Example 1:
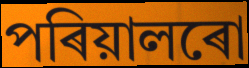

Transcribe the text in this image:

পৰিয়ালৰো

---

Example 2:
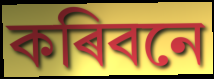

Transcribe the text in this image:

কৰিবনে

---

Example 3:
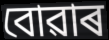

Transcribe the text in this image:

বোৱাৰ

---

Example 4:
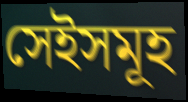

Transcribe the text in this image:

সেইসমূহ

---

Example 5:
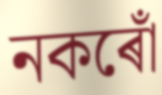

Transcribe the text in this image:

নকৰোঁ